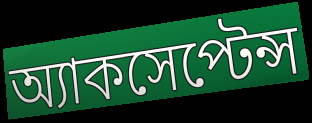
অ্যাকসেপ্টেন্স